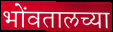
भोंवतालच्या